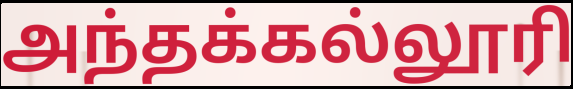
அந்தக்கல்லூரி